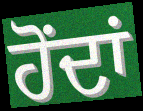
ਹੋਂਦਾਂ